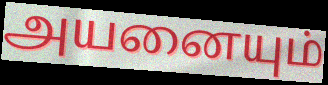
அயனையும்